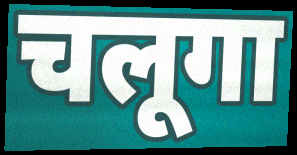
चलूगा